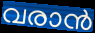
വരാൻ